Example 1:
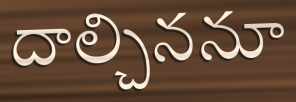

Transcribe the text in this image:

దాల్చిననూ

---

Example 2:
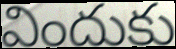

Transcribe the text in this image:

విందుకు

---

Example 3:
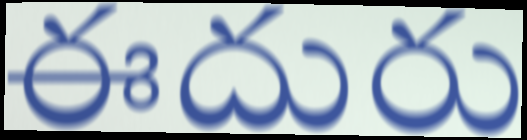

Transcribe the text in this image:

ఈదురు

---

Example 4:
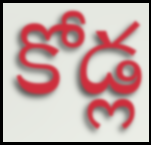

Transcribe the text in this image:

కోడ్ల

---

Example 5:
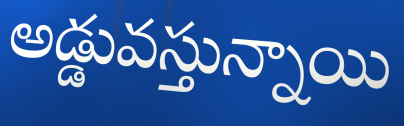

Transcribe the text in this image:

అడ్డువస్తున్నాయి